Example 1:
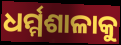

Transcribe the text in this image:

ଧର୍ମ୍ମଶାଳାକୁ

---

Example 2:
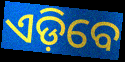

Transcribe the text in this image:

ଏଡ଼ିବେ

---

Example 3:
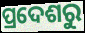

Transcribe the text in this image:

ପ୍ରଦେଶରୁ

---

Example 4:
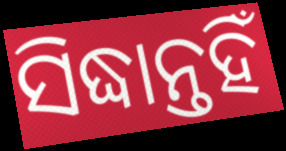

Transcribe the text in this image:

ସିଦ୍ଧାନ୍ତହିଁ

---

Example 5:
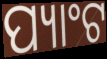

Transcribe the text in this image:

ପ୍ୟାଂଟ